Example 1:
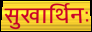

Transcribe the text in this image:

सुखार्थिनः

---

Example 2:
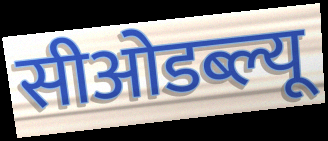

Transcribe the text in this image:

सीओडब्ल्यू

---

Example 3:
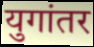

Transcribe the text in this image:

युगांतर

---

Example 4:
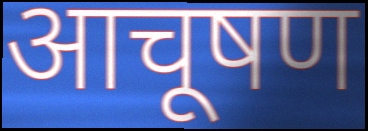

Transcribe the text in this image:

आचूषण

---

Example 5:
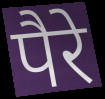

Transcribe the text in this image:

पैरे